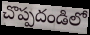
చొప్పదండిలో